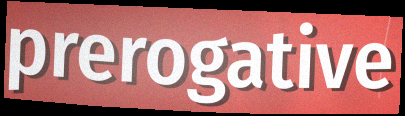
prerogative